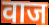
वाज